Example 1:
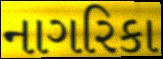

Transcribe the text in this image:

નાગરિકા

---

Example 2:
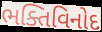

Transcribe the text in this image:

ભક્તિવિનોદ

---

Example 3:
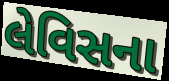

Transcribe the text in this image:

લેવિસના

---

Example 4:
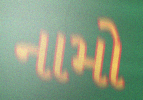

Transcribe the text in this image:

નામો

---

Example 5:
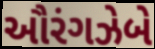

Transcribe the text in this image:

ઔરંગઝેબે